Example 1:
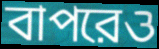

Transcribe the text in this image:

বাপরেও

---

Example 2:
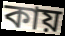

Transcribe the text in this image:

কায়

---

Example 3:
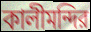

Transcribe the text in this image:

কালীমন্দির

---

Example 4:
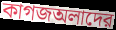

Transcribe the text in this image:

কাগজঅলাদের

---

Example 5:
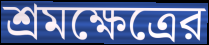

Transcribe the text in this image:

শ্রমক্ষেত্রের